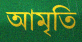
আমৃতি